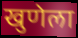
खुणेला